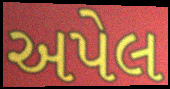
અપેલ